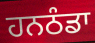
ਹਨਠੰਡਾ